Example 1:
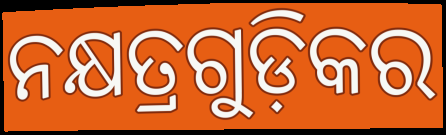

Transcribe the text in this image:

ନକ୍ଷତ୍ରଗୁଡ଼ିକର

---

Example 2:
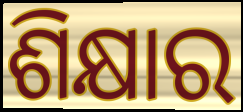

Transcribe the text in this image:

ଶିକ୍ଷାର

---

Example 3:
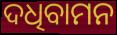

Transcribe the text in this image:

ଦଧିବାମନ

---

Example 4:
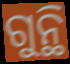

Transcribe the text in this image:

ଗୁନ୍ଥି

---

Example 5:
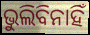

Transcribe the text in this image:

ଭୁଲିବିନାହିଁ